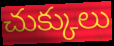
చుక్కులు